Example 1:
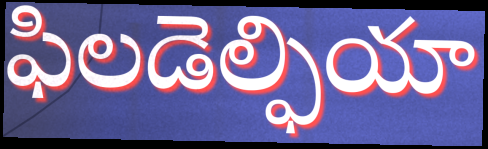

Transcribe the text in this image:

ఫిలడెల్ఫియా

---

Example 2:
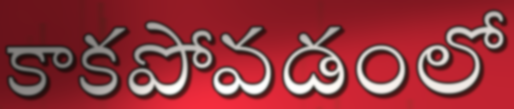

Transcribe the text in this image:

కాకపోవడంలో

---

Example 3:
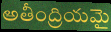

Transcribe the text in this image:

అతీంద్రియమై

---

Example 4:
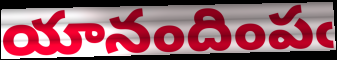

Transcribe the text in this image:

యానందింపఁ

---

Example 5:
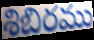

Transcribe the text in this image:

శిబిరము